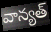
వాన్యత్